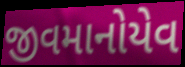
જીવમાનોયેવ